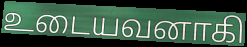
உடையவனாகி